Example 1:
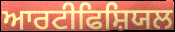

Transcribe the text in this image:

ਆਰਟੀਫਿਸ਼ਿਯਲ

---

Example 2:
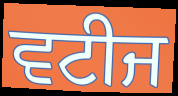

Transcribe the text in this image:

ਵਟੀਜ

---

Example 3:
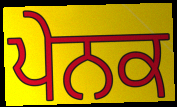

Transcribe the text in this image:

ਪੇਨਕ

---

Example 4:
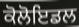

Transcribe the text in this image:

ਕੋਲੋਇਡਲ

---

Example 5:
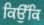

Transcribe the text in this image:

ਕਿਉੱਕਿ